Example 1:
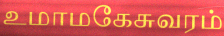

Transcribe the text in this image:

உமாமகேசுவரம்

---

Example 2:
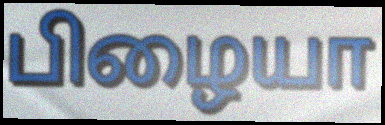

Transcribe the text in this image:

பிழையா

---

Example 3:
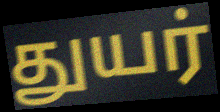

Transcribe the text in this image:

துயர்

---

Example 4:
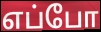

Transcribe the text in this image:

எப்போ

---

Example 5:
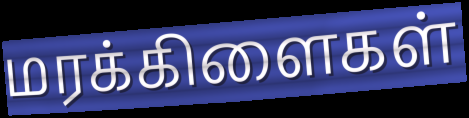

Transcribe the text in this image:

மரக்கிளைகள்